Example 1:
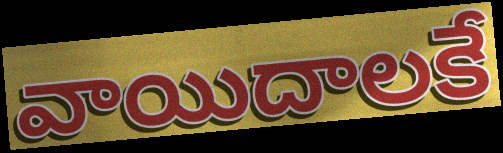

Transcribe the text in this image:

వాయిదాలకే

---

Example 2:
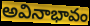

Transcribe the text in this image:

అవినాభావం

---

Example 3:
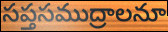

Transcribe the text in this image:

సప్తసముద్రాలనూ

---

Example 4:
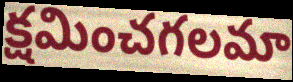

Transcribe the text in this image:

క్షమించగలమా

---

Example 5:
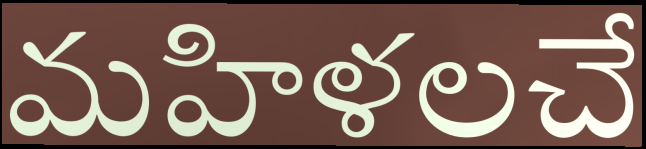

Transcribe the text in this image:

మహిళలచే